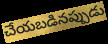
చేయబడినప్పుడు